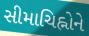
સીમાચિહ્નોને